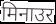
मिनाउर